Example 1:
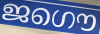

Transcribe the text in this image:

ജഗൌ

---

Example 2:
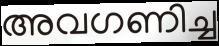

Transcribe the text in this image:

അവഗണിച്ച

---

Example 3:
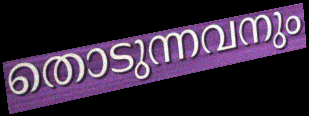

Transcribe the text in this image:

തൊടുന്നവനും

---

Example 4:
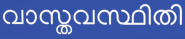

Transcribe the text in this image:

വാസ്തവസ്ഥിതി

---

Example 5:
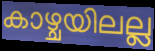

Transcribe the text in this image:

കാഴ്ചയിലല്ല